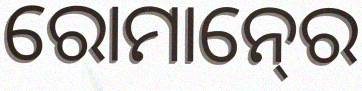
ରୋମାନ୍‍ରେ